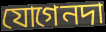
যোগেনদা